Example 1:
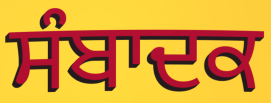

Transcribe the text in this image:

ਸੰਬਾਦਕ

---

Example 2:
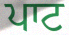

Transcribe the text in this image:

ਪਾਟ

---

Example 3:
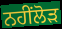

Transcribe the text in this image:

ਨਹੀਂਲੋੜ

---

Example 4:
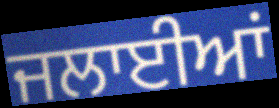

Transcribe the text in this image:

ਜਲਾਈਆਂ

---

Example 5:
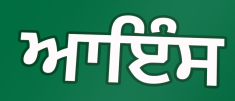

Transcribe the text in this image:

ਆਇੰਸ